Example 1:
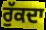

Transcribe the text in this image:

ਰੁੱਕਦਾ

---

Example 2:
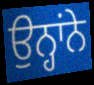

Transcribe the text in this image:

ਉਨ੍ਹਾਂਨੇ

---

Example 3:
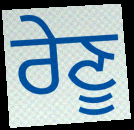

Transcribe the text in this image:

ਰੇਣੂ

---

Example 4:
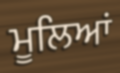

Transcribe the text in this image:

ਮੂਲਿਆਂ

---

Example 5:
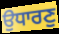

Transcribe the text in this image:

ਉਧਾਰਣੁ